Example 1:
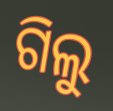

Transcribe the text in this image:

ଗିଲୁ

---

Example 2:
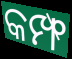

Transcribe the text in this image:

କମ୍ଫ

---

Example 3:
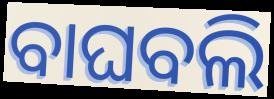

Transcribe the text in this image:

ବାଘବଲି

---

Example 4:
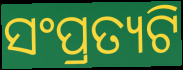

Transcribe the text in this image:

ସଂପ୍ରତ୍ୟଟି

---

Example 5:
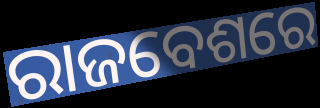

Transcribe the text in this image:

ରାଜବେଶରେ